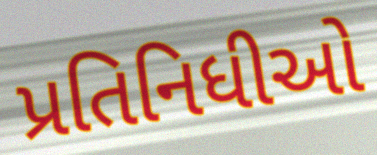
પ્રતિનિધીઓ